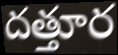
దత్తూర